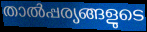
താൽപ്പര്യങ്ങളുടെ